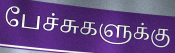
பேச்சுகளுக்கு